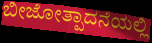
ಬೀಜೋತ್ಪಾದನೆಯಲ್ಲಿ